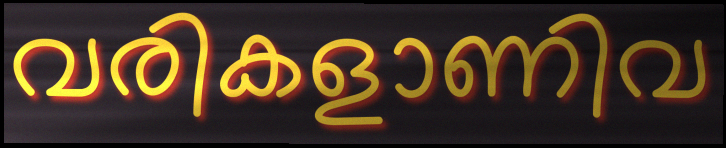
വരികളാണിവ